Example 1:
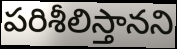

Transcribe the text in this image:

పరిశీలిస్తానని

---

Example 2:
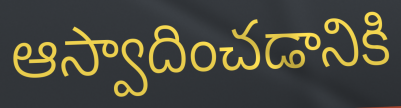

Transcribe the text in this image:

ఆస్వాదించడానికి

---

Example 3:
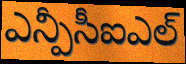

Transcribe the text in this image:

ఎన్పీసీఐఎల్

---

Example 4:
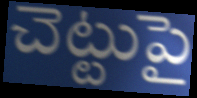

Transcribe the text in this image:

చెట్టుపై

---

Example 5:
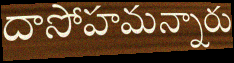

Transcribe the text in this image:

దాసోహమన్నారు